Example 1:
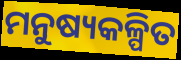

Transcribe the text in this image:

ମନୁଷ୍ୟକଳ୍ପିତ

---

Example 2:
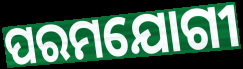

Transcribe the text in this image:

ପରମଯୋଗୀ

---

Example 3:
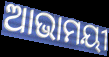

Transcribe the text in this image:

ଆଭାମୟୀ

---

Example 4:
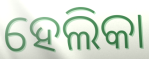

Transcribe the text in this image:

ହେଲିକା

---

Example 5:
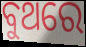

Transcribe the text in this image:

ବୁଥରେ